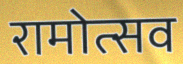
रामोत्सव